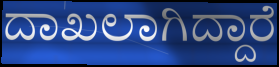
ದಾಖಲಾಗಿದ್ದಾರೆ